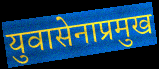
युवासेनाप्रमुख